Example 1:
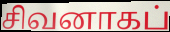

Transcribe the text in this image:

சிவனாகப்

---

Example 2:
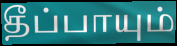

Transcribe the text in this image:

தீப்பாயும்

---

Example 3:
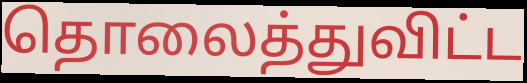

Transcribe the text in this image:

தொலைத்துவிட்ட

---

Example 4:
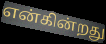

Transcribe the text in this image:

என்கின்றது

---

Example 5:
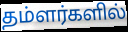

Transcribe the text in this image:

தம்ளர்களில்